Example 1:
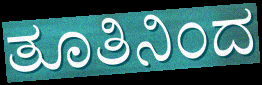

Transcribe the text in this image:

ತೂತಿನಿಂದ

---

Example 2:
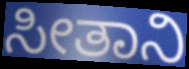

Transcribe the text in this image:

ಸೀತಾನಿ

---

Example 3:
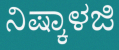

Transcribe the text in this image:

ನಿಷ್ಕಾಳಜಿ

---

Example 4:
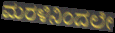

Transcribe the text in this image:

ಮರಳಿನಿಂದಲೇ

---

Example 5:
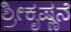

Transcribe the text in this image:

ಶ್ರೀಕೃಷ್ಣನೆ